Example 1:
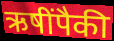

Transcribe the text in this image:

ऋषींपैकी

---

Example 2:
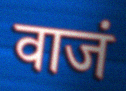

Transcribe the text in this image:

वाजं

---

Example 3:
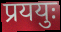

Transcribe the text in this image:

प्रययुः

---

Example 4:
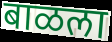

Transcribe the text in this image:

बाळला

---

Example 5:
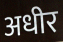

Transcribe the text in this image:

अधीर